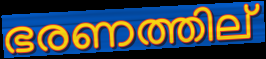
ഭരണത്തില്